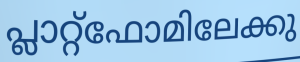
പ്ലാറ്റ്ഫോമിലേക്കു